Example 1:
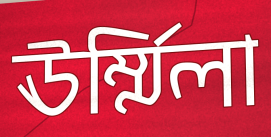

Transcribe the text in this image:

ঊর্ম্মিলা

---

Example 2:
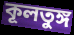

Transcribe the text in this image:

কূলতুঙ্গ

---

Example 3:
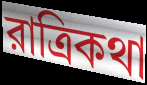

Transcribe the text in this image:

রাত্রিকথা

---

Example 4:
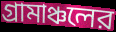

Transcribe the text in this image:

গ্রামাঞ্চলের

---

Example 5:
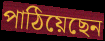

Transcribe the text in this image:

পাঠিয়েছেন